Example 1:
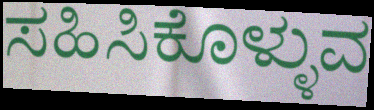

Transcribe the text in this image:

ಸಹಿಸಿಕೊಳ್ಳುವ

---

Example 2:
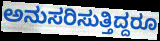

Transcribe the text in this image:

ಅನುಸರಿಸುತ್ತಿದ್ದರೂ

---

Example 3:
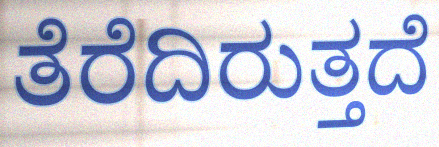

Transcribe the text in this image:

ತೆರೆದಿರುತ್ತದೆ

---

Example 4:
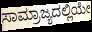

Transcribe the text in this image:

ಸಾಮ್ರಾಜ್ಯದಲ್ಲಿಯೇ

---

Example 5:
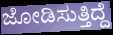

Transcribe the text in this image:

ಜೋಡಿಸುತ್ತಿದ್ದೆ